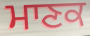
ਮਾਣਕ